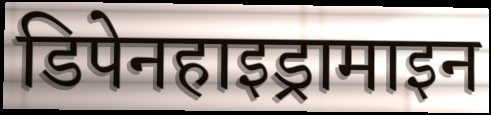
डिपेनहाइड्रामाइन